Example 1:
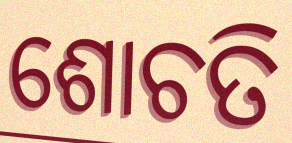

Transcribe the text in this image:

ଶୋଚତି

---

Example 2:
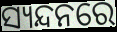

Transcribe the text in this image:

ସ୍ୟନ୍ଦନରେ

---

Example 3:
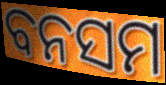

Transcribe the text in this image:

ବନସମ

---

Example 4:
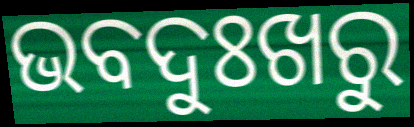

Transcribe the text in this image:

ଭବଦୁଃଖରୁ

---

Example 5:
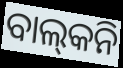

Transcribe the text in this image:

ବାଲ୍‍କନି